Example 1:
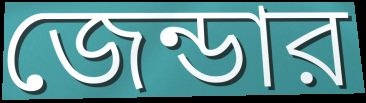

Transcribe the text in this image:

জেন্ডার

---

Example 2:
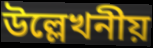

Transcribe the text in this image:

উল্লেখনীয়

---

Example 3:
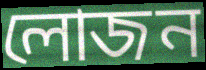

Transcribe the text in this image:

লোজন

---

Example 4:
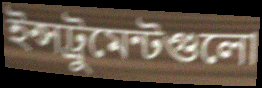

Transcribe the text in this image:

ইন্সট্রুমেন্টগুলো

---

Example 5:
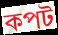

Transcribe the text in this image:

কপট